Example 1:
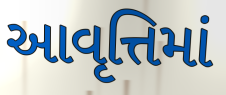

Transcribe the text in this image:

આવૃત્તિમાં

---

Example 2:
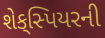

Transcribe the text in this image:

શેક્‌સ્પિયરની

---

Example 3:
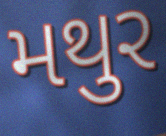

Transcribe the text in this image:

મથુર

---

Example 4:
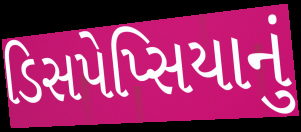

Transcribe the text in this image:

ડિસપેપ્સિયાનું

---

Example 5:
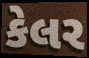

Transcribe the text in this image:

કેલર